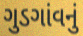
ગુડગાંવનું